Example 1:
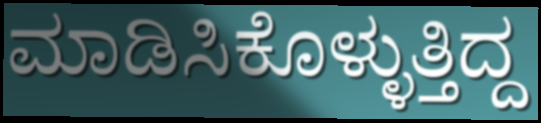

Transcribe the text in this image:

ಮಾಡಿಸಿಕೊಳ್ಳುತ್ತಿದ್ದ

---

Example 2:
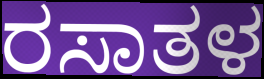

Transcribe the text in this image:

ರಸಾತಳ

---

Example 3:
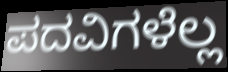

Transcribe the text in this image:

ಪದವಿಗಳೆಲ್ಲ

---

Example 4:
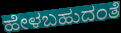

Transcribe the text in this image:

ಹೇಳಬಹುದಂತೆ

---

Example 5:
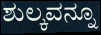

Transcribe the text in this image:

ಶುಲ್ಕವನ್ನೂ